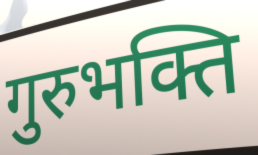
गुरुभक्ति